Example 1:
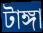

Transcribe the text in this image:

টাঙ্গা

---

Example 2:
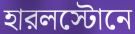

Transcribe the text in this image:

হারলস্টোনে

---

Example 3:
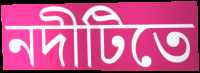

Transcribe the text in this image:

নদীটিতে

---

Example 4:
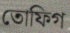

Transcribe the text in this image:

তোফিগ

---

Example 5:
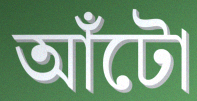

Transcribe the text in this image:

আঁটো